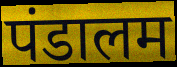
पंडालम